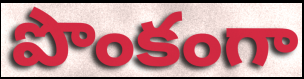
పొంకంగా